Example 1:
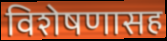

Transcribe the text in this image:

विशेषणासह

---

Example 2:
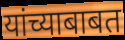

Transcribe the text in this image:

यांच्याबाबत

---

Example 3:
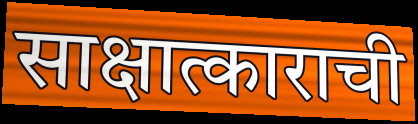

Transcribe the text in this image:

साक्षात्काराची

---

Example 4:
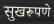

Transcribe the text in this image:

सुखरूपणे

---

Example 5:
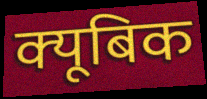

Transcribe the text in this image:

क्यूबिक